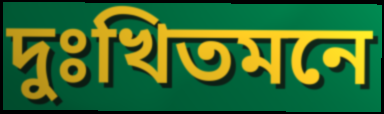
দুঃখিতমনে